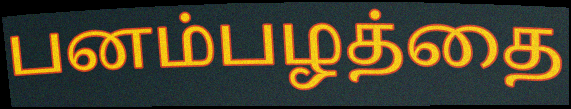
பனம்பழத்தை